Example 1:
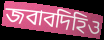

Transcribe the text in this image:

জবাবদিহিও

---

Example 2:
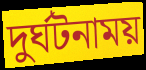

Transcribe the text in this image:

দুর্ঘটনাময়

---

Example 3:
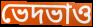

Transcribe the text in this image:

ভেদভাও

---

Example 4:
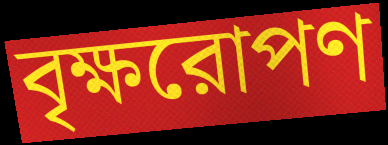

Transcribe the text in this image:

বৃক্ষরোপণ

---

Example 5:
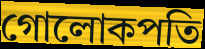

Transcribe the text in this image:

গোলোকপতি